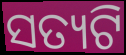
ସତ୍ୟଟି